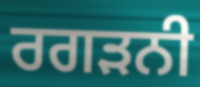
ਰਗੜਨੀ